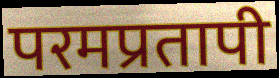
परमप्रतापी